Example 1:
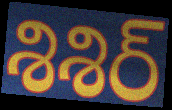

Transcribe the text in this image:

శిశిర్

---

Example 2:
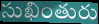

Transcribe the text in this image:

సుఖింతురు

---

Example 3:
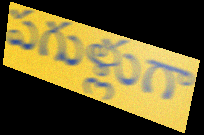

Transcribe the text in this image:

పగుళ్లుగా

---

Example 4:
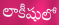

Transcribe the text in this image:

లాకీషులో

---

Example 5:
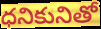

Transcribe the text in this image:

ధనికునితో